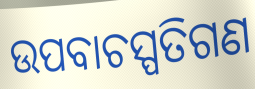
ଉପବାଚସ୍ପତିଗଣ